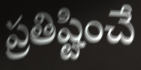
ప్రతిష్టించే